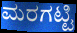
ಮರಗಟ್ಟಿ